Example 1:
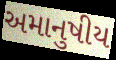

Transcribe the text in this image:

અમાનુષીય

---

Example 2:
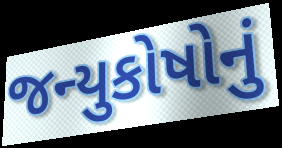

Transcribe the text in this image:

જન્યુકોષોનું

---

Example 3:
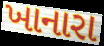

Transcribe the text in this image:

ખાનારા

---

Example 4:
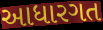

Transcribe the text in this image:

આધારગત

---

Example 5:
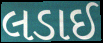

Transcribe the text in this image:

લડાઈ